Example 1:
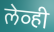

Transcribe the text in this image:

लेव्ही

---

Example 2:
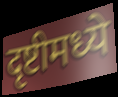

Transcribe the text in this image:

दृष्टीमध्ये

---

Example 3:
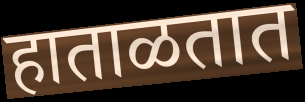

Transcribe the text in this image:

हाताळतात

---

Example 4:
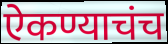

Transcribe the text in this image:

ऐकण्याचंच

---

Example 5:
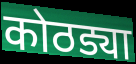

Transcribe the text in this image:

कोठड्या